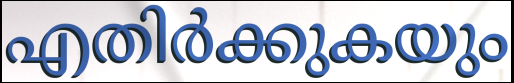
എതിർക്കുകയും